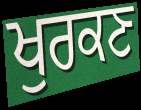
ਖੁਰਕਣ